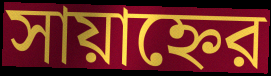
সায়াহ্নের